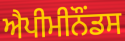
ਐਪੀਮੀਨੌਂਡਸ